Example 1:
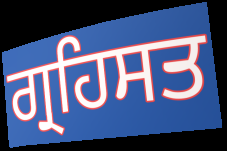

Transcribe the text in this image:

ਗ੍ਰਹਿਸਤ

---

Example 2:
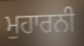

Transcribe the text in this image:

ਮੁਹਾਰਨੀ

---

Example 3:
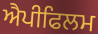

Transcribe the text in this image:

ਐਪੀਫਿਲਮ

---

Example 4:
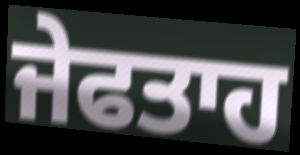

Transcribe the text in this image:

ਜੇਫਤਾਹ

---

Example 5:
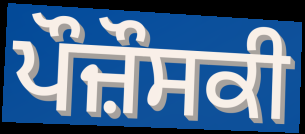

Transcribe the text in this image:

ਪੌਜ਼ੌਸਕੀ